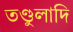
তণ্ডুলাদি